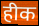
हीक